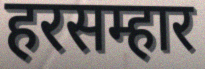
हरसम्हार